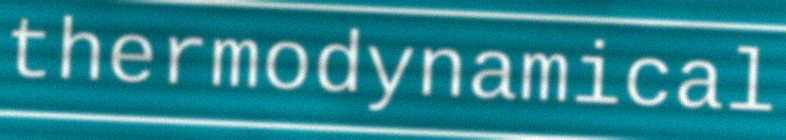
thermodynamical